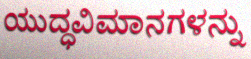
ಯುದ್ಧವಿಮಾನಗಳನ್ನು